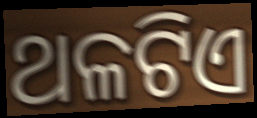
ଥଳଟିଏ